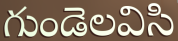
గుండెలవిసి